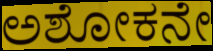
ಅಶೋಕನೇ